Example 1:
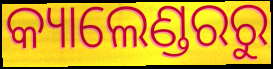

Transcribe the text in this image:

କ୍ୟାଲେଣ୍ଡରରୁ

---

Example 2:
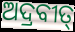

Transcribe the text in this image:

ଅଦ୍ରବୀତ୍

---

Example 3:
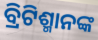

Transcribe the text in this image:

ବ୍ରିଟିଶ୍ମାନଙ୍କ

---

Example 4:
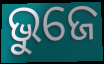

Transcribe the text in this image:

ଭୁଜେ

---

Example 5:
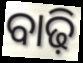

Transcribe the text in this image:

ବାଢ଼ି